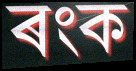
ৰংক